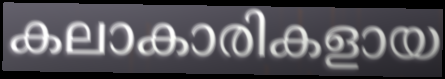
കലാകാരികളായ